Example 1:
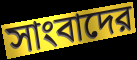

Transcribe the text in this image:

সাংবাদের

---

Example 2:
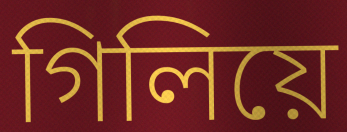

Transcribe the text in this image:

গিলিয়ে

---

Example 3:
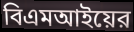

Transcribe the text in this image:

বিএমআইয়ের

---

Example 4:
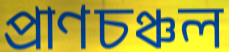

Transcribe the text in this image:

প্রাণচঞ্চল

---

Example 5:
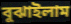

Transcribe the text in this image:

বুঝাইলাম